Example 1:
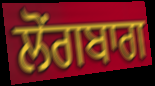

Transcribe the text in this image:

ਲੋਂਗਬਾਗ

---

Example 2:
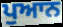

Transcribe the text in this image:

ਪੁਆਨ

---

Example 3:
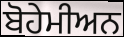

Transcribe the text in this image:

ਬੋਹੇਮੀਅਨ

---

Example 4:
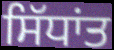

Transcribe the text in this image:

ਸਿੱਧਾਂਤ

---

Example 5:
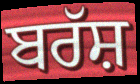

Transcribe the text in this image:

ਬਰੱਸ਼